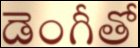
డెంగీతో